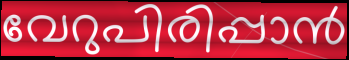
വേറുപിരിപ്പാൻ